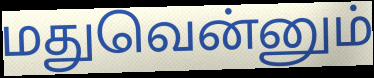
மதுவென்னும்